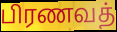
பிரணவத்